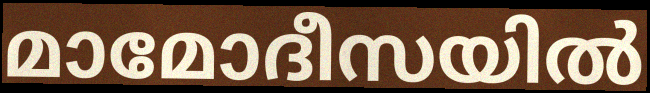
മാമോദീസയിൽ